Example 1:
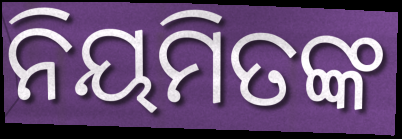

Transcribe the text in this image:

ନିୟମିତଙ୍କ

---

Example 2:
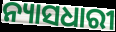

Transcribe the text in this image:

ନ୍ୟାସଧାରୀ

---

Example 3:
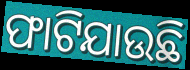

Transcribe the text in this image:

ଫାଟିଯାଉଛି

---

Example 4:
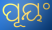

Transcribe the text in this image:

ପୂୟଂ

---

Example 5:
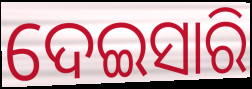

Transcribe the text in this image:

ଦେଇସାରି